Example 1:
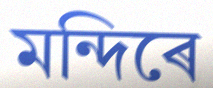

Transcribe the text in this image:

মন্দিৰে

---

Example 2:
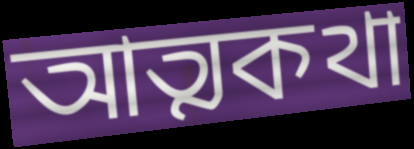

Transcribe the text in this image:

আত্মকথা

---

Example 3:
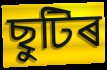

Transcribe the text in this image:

ছুটিৰ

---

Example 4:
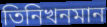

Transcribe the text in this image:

তিনিখনমান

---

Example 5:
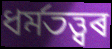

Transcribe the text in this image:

ধৰ্মতত্ত্বৰ